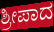
ಶ್ರೀಪಾದ